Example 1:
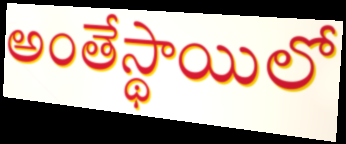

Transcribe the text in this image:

అంతేస్థాయిలో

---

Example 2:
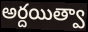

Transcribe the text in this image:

అర్దయిత్వా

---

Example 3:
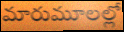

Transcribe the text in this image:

మారుమూలల్లో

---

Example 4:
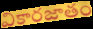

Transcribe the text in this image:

వికారజాతం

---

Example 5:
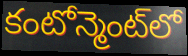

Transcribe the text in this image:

కంటోన్మెంట్‌లో